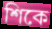
শিকে